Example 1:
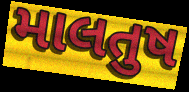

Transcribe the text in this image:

માલતુષ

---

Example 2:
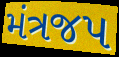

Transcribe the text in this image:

મંત્રજપ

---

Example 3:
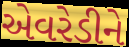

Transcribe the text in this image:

એવરેડીને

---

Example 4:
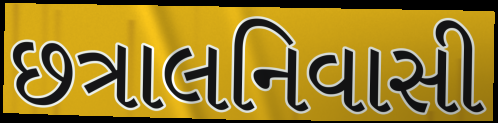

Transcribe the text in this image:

છત્રાલનિવાસી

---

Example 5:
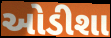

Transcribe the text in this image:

ઓડીશા